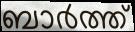
ബാർത്ത്